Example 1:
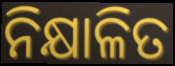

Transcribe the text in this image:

ନିକ୍ଷାଳିତ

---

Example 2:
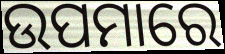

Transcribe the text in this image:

ଉପମାରେ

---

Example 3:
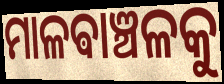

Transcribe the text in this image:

ମାଳଵାଞ୍ଚଳକୁ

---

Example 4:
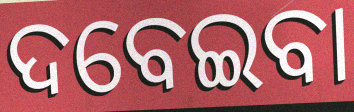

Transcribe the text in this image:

ଦବେଇବା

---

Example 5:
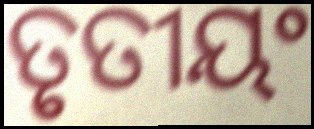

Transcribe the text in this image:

ତୃତୀୟଂ